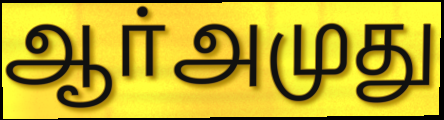
ஆர்அமுது